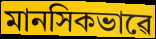
মানসিকভাৱে